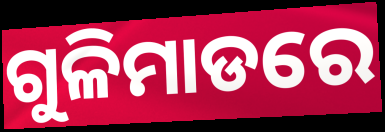
ଗୁଳିମାଡରେ